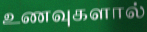
உணவுகளால்